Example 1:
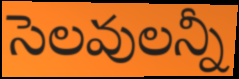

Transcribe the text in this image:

సెలవులన్నీ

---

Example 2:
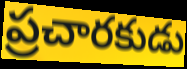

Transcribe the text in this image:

ప్రచారకుడు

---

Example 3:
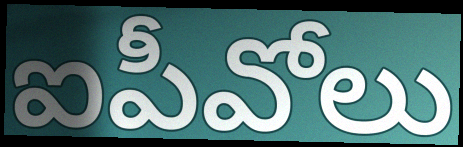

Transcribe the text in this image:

ఐపీవోలు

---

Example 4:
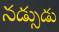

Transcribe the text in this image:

నడ్సుడు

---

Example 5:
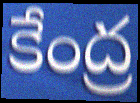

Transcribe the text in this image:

కేంద్ర